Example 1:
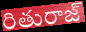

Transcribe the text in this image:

రితురాజ్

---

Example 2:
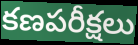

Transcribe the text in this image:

కణపరీక్షలు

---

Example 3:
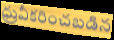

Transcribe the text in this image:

ధ్రువీకరించబడిన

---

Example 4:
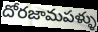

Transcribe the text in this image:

దోరజామపళ్ళు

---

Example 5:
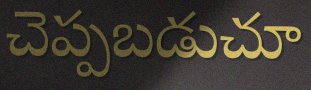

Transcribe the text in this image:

చెప్పబడుచూ